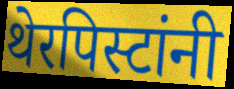
थेरपिस्टांनी